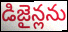
డిజైన్లను